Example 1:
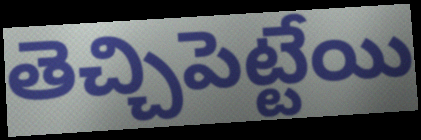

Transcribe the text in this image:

తెచ్చిపెట్టేయి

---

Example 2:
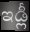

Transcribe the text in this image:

ఇడ్లీ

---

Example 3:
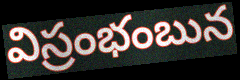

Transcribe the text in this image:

విస్రంభంబున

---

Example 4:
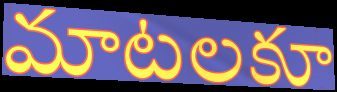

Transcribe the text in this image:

మాటలకూ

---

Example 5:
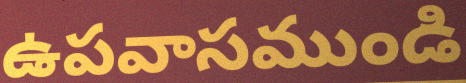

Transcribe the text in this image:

ఉపవాసముండి